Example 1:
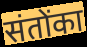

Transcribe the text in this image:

संतोंका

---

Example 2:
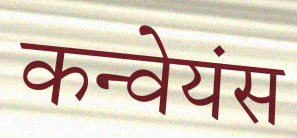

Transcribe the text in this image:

कन्वेयंस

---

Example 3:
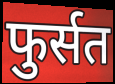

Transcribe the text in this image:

फुर्सत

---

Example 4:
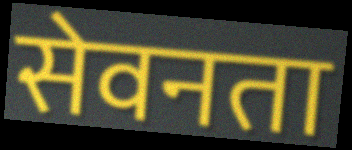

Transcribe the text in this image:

सेवनता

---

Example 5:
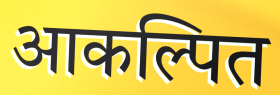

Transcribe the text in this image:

आकल्पित